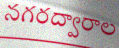
నగరద్వారాల